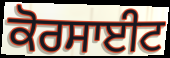
ਕੋਰਸਾਈਟ